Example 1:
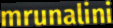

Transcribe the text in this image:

mrunalini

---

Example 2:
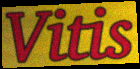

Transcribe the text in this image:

Vitis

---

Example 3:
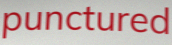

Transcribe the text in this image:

punctured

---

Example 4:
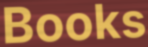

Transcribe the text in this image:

Books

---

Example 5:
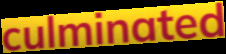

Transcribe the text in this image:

culminated